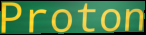
Proton